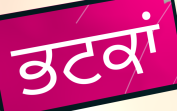
ਭਟਕਾਂ